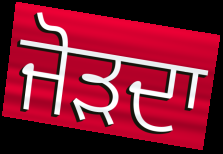
ਜੋੜਦਾ